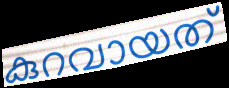
കുറവായത്